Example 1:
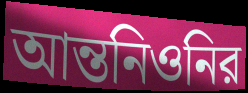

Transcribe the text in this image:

আন্তনিওনির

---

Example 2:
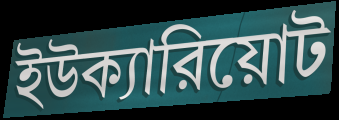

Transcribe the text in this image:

ইউক্যারিয়োট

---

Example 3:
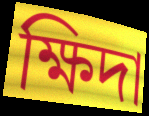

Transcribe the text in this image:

ক্ষিদা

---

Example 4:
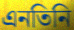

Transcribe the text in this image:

এনতিনি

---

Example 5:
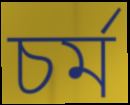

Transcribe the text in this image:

চর্ম